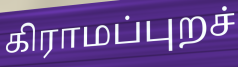
கிராமப்புறச்